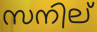
സനില്